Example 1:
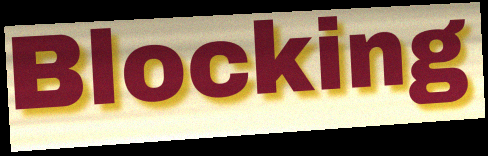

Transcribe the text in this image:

Blocking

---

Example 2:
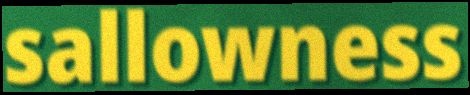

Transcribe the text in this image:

sallowness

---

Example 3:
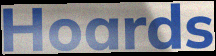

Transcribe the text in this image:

Hoards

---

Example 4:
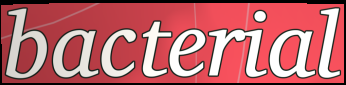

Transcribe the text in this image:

bacterial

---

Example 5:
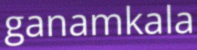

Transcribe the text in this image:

ganamkala